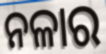
ନଳାର